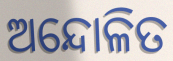
ଅନ୍ଦୋଳିତ